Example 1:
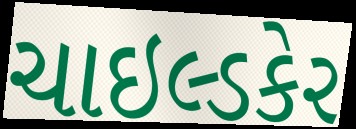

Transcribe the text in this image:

ચાઇલ્ડકેર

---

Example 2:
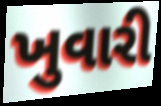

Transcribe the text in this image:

ખુવારી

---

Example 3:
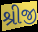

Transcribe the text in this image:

શ્રીજી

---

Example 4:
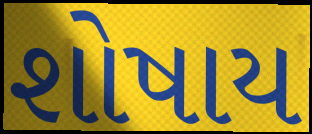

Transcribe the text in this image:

શોષાય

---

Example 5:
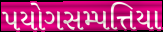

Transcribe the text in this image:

પયોગસમ્પત્તિયા